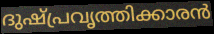
ദുഷ്പ്രവൃത്തിക്കാരൻ